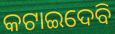
କଟାଇଦେବି